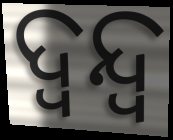
ଦ୍ବନ୍ଦ୍ବ